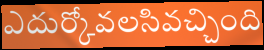
ఎదుర్కోవలసివచ్చింది